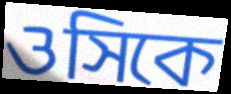
ওসিকে